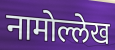
नामोल्लेख